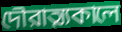
দৌরাত্ম্যকালে